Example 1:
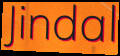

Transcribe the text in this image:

Jindal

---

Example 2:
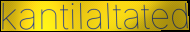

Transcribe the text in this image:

kantilaltated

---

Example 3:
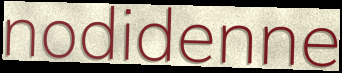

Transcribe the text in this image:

nodidenne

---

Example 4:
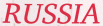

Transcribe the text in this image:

RUSSIA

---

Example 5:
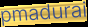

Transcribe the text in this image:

pmadurai